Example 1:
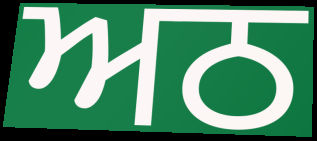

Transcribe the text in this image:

ਅਠ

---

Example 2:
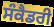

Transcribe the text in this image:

ਸੰਕੈਡਰੀ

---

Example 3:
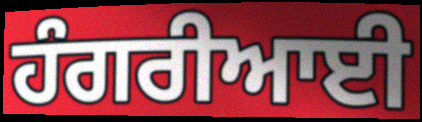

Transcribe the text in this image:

ਹੰਗਰੀਆਈ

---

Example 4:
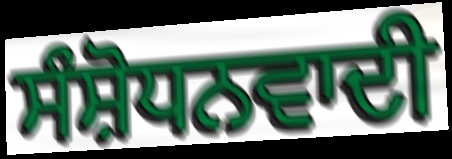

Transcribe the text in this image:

ਸੰਸ਼ੋਧਨਵਾਦੀ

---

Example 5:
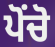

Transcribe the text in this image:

ਪੋਂਚੋ